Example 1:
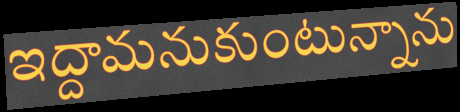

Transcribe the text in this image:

ఇద్దామనుకుంటున్నాను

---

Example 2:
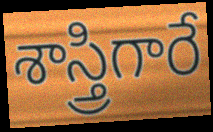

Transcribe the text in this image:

శాస్త్రిగారే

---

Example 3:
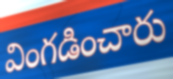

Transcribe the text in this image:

వింగడించారు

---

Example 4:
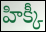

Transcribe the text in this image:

హిక్కీ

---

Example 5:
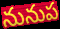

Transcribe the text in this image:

నునుప